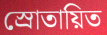
স্রোতায়িত